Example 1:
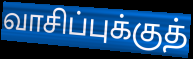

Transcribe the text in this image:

வாசிப்புக்குத்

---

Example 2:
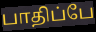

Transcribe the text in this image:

பாதிப்பே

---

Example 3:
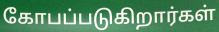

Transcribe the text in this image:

கோபப்படுகிறார்கள்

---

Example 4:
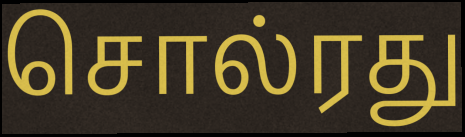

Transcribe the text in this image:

சொல்ரது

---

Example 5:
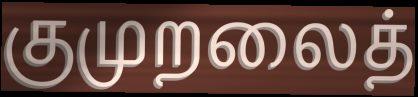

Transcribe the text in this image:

குமுறலைத்